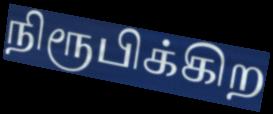
நிரூபிக்கிற